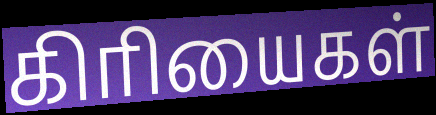
கிரியைகள்